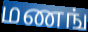
மணங்